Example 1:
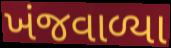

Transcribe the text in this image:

ખંજવાળ્યા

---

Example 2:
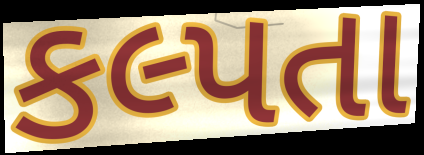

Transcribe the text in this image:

કલ્પતા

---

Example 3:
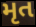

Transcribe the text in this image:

મૃત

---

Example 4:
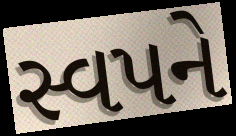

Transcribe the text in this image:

સ્વપને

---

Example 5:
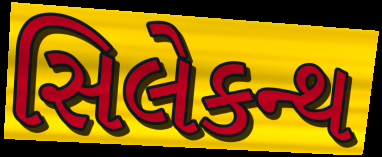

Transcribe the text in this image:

સિલેકન્થ